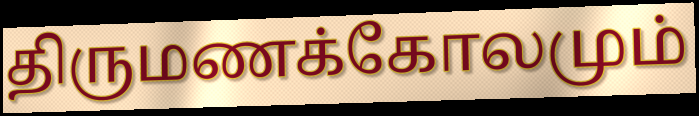
திருமணக்கோலமும்